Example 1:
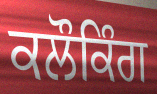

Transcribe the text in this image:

ਕਲੌਕਿੰਗ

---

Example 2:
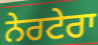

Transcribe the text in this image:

ਨੇਰਟੇਰਾ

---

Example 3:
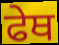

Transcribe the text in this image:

ਫੇਥ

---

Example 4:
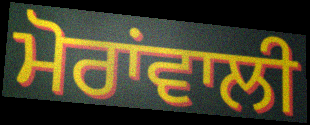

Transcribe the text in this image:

ਮੋਰਾਂਵਾਲੀ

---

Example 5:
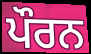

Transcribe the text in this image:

ਪੌਰਨ